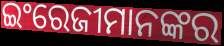
ଇଂରେଜୀମାନଙ୍କର